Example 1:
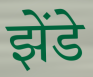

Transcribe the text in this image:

झेंडे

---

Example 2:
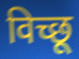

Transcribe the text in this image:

विच्छू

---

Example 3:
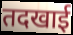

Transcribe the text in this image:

तदखाई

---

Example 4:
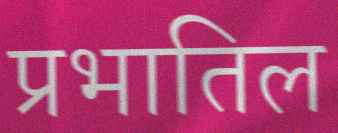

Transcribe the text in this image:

प्रभातिल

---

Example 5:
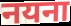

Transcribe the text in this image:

नयना